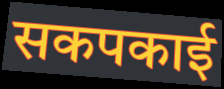
सकपकाई